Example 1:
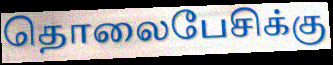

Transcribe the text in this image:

தொலைபேசிக்கு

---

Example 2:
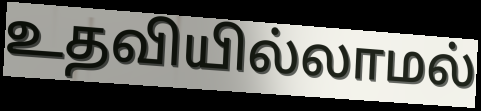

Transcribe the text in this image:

உதவியில்லாமல்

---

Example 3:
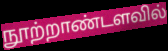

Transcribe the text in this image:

நூற்றாண்டளவில்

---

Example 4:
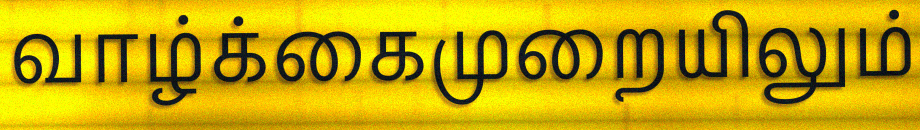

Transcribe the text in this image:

வாழ்க்கைமுறையிலும்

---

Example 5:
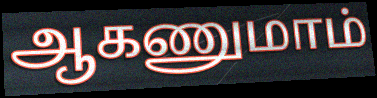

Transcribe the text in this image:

ஆகணுமாம்